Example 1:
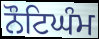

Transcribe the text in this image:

ਨੌਟਿਘੰਮ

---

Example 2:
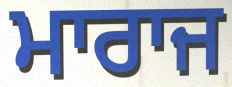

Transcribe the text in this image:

ਮਾਰਾਜ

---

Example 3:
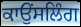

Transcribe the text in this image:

ਕਾਉੰਸਲਿੰਗ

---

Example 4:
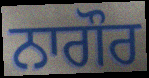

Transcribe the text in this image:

ਨਾਗੌਰ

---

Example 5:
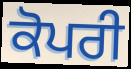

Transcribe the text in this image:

ਕੋਪਰੀ